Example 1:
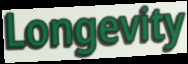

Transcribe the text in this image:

Longevity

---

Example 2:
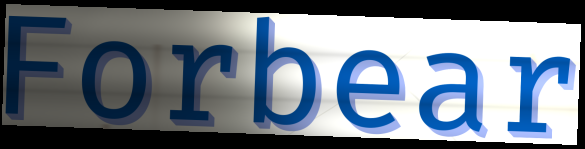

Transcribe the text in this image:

Forbear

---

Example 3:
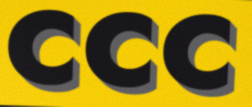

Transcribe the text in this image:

ccc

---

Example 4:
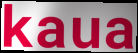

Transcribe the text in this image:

kaua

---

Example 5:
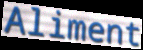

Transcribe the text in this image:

Aliment